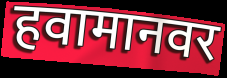
हवामानवर